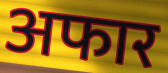
अफार